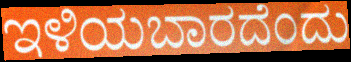
ಇಳಿಯಬಾರದೆಂದು